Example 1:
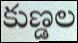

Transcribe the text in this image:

కుణ్డల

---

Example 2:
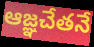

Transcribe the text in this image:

ఆజ్ఞచేతనే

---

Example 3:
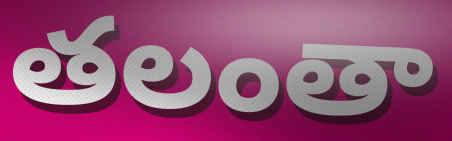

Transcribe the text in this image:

తలంతా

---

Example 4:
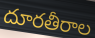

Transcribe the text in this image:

దూరతీరాల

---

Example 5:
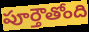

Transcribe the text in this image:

పూర్తౌతోంది